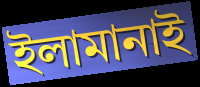
ইলামানাই